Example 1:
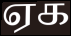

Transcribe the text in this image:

ஏக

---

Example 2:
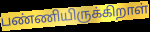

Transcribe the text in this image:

பண்ணியிருக்கிறாள்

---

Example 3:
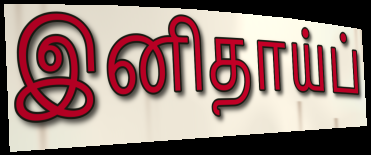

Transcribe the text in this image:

இனிதாய்ப்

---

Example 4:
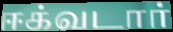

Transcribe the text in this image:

ஈக்வடார்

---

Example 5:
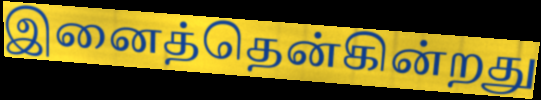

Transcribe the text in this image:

இனைத்தென்கின்றது